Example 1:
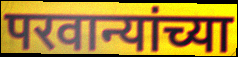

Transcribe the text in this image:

परवान्यांच्या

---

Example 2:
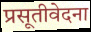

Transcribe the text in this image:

प्रसूतीवेदना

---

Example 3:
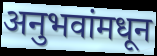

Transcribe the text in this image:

अनुभवांमधून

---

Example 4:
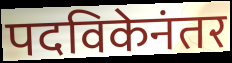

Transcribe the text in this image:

पदविकेनंतर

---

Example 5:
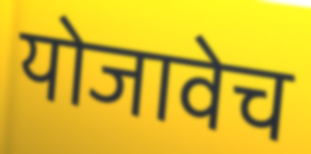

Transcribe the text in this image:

योजावेच